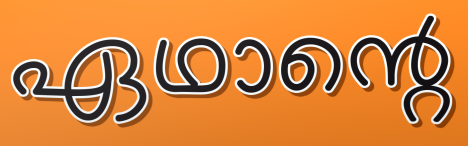
ഏഥാന്റെ